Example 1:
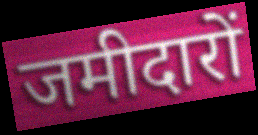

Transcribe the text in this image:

जमीदारों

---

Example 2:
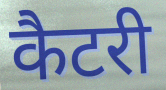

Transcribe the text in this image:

कैटरी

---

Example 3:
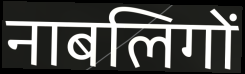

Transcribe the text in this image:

नाबलिगों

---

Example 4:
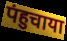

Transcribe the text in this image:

पंहुचाया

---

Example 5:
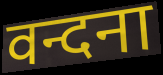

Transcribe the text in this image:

वन्दना